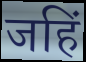
जहिं